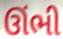
ઊંભી